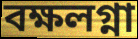
বক্ষলগ্না